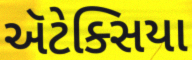
ઍટેક્સિયા